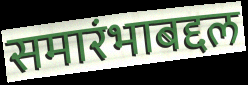
समारंभाबद्दल